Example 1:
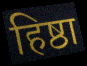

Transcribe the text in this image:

हिष्ठा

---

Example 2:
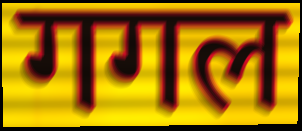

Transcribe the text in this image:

गगल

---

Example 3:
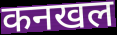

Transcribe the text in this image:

कनखल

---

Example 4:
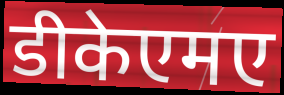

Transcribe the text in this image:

डीकेएमए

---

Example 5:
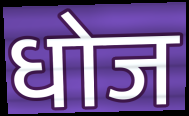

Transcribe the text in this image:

धोज